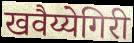
खवैय्येगिरी